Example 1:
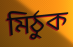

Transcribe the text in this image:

মিঠুক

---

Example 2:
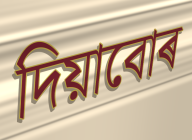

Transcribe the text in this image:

দিয়াবোৰ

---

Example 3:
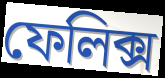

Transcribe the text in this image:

ফেলিক্স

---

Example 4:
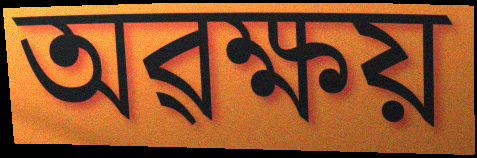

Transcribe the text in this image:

অৱক্ষয়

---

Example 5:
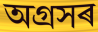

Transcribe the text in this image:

অগ্ৰসৰ